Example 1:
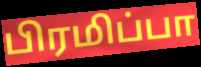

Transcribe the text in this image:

பிரமிப்பா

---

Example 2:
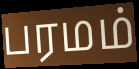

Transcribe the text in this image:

பரமம்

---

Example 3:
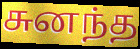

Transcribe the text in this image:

சுனந்த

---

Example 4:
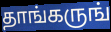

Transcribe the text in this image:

தாங்கருங்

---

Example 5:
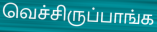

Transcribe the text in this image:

வெச்சிருப்பாங்க